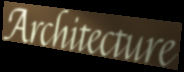
Architecture